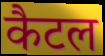
कैटल